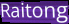
Raitong